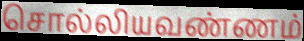
சொல்லியவண்ணம்